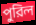
পুরিল